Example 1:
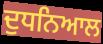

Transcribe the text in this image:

ਦੁਧਨਿਆਲ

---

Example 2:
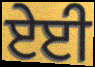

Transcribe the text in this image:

ਏਈ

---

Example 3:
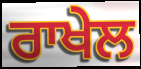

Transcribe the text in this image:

ਰਾਖੇਲ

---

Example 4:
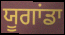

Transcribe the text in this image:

ਯੂਗਾਂਡਾ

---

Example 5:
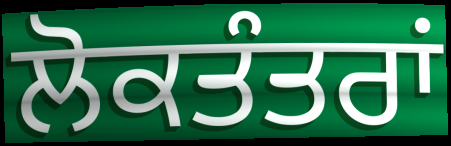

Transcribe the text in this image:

ਲੋਕਤੰਤਰਾਂ